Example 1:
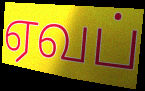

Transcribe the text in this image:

ஏவப்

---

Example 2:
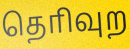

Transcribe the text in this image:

தெரிவுற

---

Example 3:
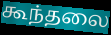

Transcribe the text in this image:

கூந்தலை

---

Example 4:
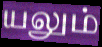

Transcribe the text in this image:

யலும்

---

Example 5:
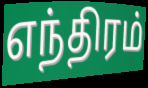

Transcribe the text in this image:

எந்திரம்